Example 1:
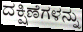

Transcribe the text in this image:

ದಕ್ಷಿಣೆಗಳನ್ನು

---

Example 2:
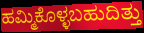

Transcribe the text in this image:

ಹಮ್ಮಿಕೊಳ್ಳಬಹುದಿತ್ತು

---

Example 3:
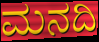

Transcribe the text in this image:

ಮನದಿ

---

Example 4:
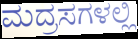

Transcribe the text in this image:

ಮದ್ರಸಗಳಲ್ಲಿ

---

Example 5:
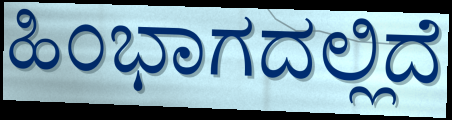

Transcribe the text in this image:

ಹಿಂಭಾಗದಲ್ಲಿದೆ